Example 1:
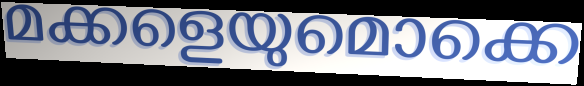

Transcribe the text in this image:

മക്കളെയുമൊക്കെ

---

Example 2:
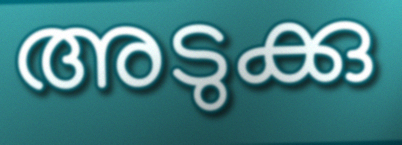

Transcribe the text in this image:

അടുക്കു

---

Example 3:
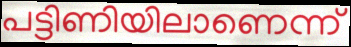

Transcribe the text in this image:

പട്ടിണിയിലാണെന്ന്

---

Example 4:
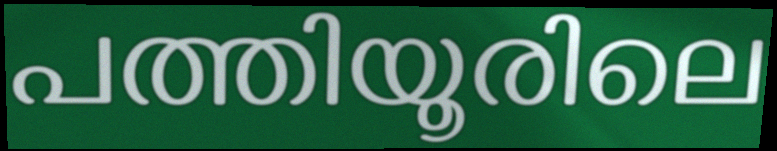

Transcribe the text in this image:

പത്തിയൂരിലെ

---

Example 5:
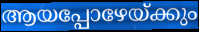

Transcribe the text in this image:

ആയപ്പോഴേയ്ക്കും